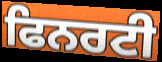
ਫਿਨਰਟੀ